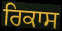
ਰਿਕਾਸ